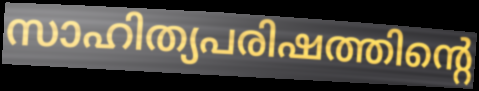
സാഹിത്യപരിഷത്തിന്റെ